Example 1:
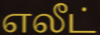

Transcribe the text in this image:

எலீட்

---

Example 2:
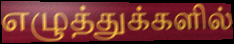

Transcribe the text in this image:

எழுத்துக்களில்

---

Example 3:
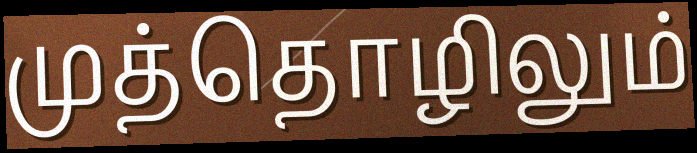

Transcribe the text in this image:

முத்தொழிலும்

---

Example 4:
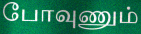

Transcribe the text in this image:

போவுணும்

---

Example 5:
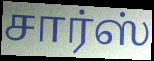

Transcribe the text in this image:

சார்ஸ்